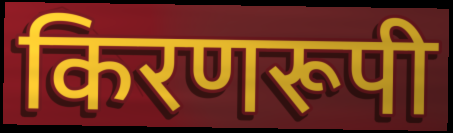
किरणरूपी